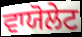
ਵਾਯੋਲੇਟ